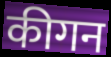
कीगन